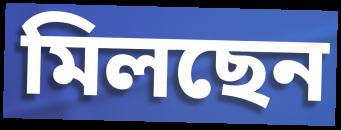
মিলছেন